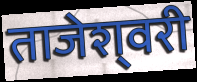
ताजेश्वरी